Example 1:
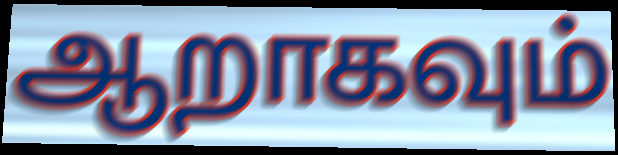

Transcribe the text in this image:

ஆறாகவும்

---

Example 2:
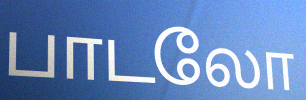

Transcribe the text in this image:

பாடலோ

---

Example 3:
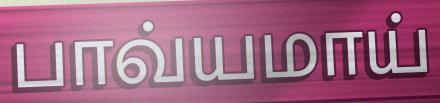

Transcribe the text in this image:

பாவ்யமாய்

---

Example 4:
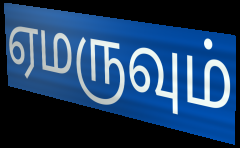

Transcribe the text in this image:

ஏமருவும்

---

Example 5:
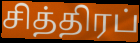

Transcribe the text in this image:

சித்திரப்